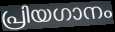
പ്രിയഗാനം